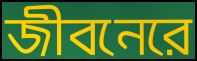
জীবনেরে